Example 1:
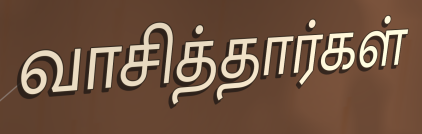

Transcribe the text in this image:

வாசித்தார்கள்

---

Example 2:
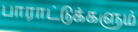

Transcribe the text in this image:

பாராட்டுக்களும்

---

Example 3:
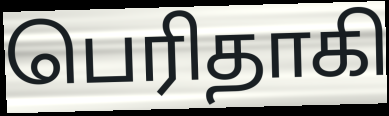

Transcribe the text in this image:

பெரிதாகி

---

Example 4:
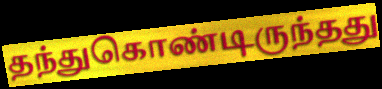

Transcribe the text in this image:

தந்துகொண்டிருந்தது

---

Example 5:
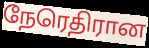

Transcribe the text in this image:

நேரெதிரான